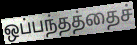
ஒப்பந்தத்தைச்